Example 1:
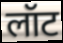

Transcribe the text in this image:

लॉट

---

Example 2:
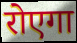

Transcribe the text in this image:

रोएगा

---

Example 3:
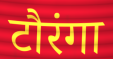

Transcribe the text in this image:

टौरंगा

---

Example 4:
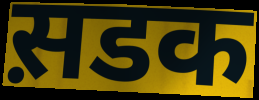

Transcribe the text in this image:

स़डक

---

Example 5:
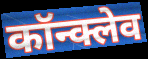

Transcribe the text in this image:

कॉन्क्लेव